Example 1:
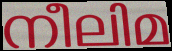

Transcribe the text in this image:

നീലിമ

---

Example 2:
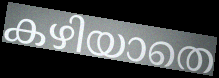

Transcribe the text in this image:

കഴിയാതെ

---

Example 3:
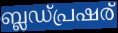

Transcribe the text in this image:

ബ്ലഡ്പ്രഷര്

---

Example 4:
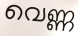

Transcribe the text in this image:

വെണ്ണ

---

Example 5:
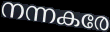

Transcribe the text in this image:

നന്നകരേ